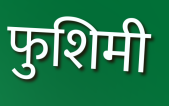
फुशिमी